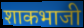
शाकभाजी